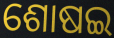
ଶୋଷଇ